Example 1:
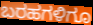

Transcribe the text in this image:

ಬರಹಗಳಿಗೂ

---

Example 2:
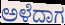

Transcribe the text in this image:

ಅಳೆದಾಗ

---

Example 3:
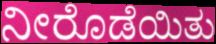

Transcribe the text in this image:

ನೀರೊಡೆಯಿತು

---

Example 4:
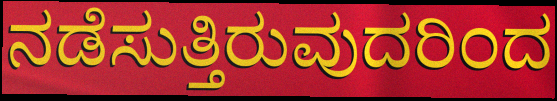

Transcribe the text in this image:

ನಡೆಸುತ್ತಿರುವುದರಿಂದ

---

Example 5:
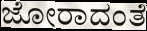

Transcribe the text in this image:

ಜೋರಾದಂತೆ